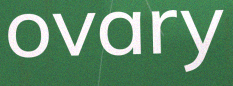
ovary